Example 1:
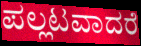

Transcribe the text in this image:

ಪಲ್ಲಟವಾದರೆ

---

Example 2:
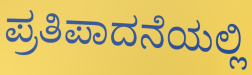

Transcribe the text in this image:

ಪ್ರತಿಪಾದನೆಯಲ್ಲಿ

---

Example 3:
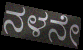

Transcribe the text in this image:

ನಳನೇ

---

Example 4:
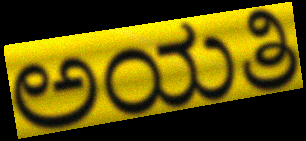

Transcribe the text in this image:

ಅಯತಿ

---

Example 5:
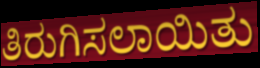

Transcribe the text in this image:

ತಿರುಗಿಸಲಾಯಿತು